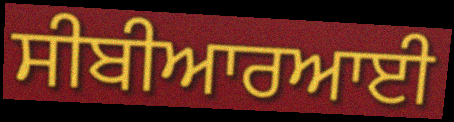
ਸੀਬੀਆਰਆਈ